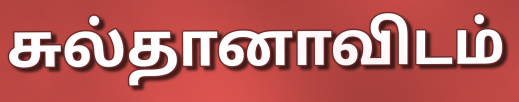
சுல்தானாவிடம்